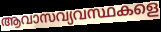
ആവാസവ്യവസ്ഥകളെ